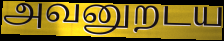
அவனுறடய